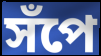
সঁপে